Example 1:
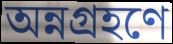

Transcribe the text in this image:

অন্নগ্রহণে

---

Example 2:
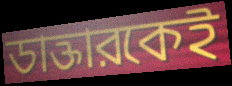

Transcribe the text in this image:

ডাক্তারকেই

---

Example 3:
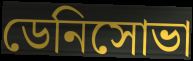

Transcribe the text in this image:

ডেনিসোভা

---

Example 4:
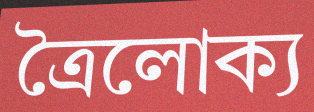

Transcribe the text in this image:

ত্রৈলোক্য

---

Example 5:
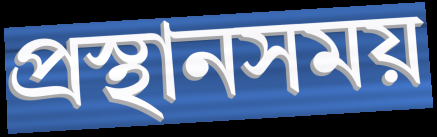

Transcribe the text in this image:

প্রস্থানসময়